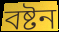
বষ্টন